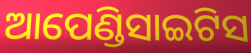
ଆପେଣ୍ଡିସାଇଟିସ